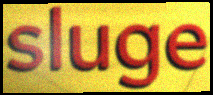
sluge